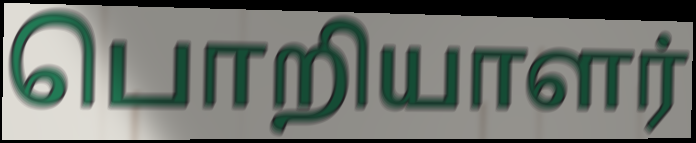
பொறியாளர்